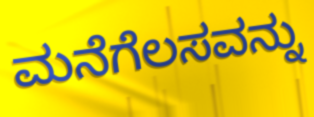
ಮನೆಗೆಲಸವನ್ನು